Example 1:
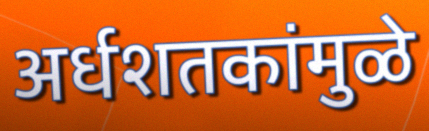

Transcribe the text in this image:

अर्धशतकांमुळे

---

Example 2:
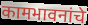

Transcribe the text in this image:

कामभावनांचे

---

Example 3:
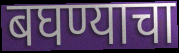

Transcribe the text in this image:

बघण्याचा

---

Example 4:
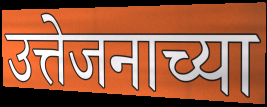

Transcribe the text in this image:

उत्तेजनाच्या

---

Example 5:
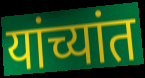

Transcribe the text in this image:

यांच्यांत